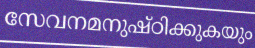
സേവനമനുഷ്ഠിക്കുകയും